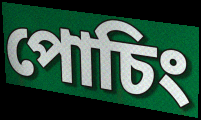
পোচিং